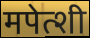
मपेत्शी